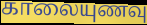
காலையுணவு